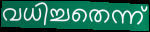
വധിച്ചതെന്ന്